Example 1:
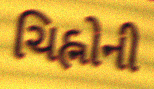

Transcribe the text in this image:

ચિહ્નોની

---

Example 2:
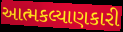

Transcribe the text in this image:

આત્મકલ્યાણકારી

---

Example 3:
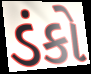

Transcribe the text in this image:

ડંકો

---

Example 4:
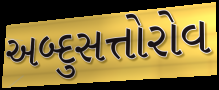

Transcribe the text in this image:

અબ્દુસત્તોરોવ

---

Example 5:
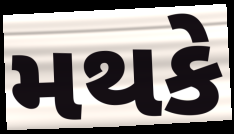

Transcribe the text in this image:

મથકે